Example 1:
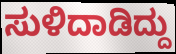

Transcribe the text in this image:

ಸುಳಿದಾಡಿದ್ದು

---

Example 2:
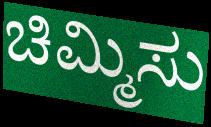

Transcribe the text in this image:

ಚಿಮ್ಮಿಸು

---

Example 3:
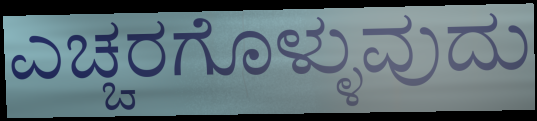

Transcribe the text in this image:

ಎಚ್ಚರಗೊಳ್ಳುವುದು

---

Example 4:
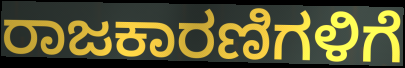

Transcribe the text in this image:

ರಾಜಕಾರಣಿಗಳಿಗೆ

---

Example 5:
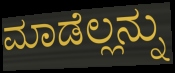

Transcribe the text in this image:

ಮಾಡೆಲ್ಲನ್ನು